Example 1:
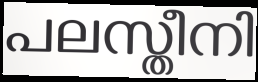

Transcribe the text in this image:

പലസ്തീനി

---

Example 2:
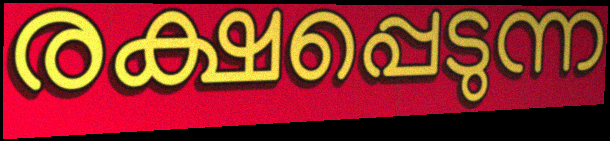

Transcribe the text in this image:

രക്ഷപ്പെടുന്ന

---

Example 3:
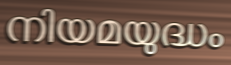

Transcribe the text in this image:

നിയമയുദ്ധം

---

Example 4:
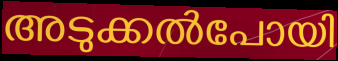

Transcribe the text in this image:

അടുക്കൽപോയി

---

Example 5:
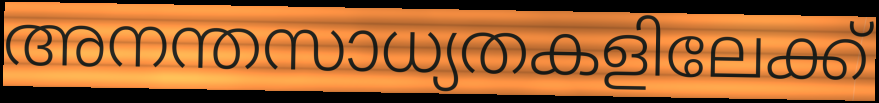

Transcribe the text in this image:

അനന്തസാധ്യതകളിലേക്ക്